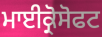
ਮਾਈਕ੍ਰੋਸੋਫਟ